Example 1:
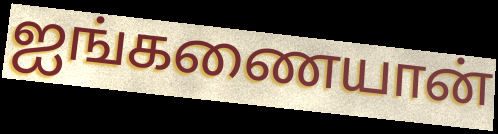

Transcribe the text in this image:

ஐங்கணையான்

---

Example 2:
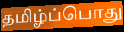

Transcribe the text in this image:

தமிழ்ப்பொது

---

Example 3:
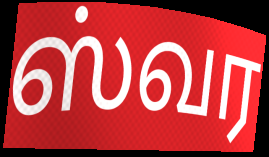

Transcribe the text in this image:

ஸ்வர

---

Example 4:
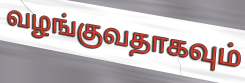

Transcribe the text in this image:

வழங்குவதாகவும்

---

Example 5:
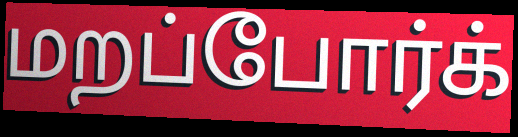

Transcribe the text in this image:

மறப்போர்க்